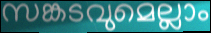
സങ്കടവുമെല്ലാം